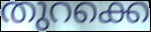
തുറക്കെ